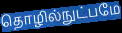
தொழில்நுட்பமே